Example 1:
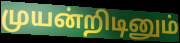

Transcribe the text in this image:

முயன்றிடினும்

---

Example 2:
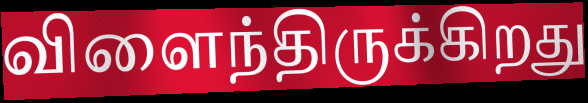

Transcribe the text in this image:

விளைந்திருக்கிறது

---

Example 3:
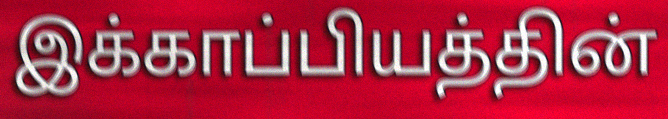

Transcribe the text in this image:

இக்காப்பியத்தின்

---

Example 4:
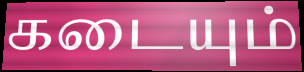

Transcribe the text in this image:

கடையும்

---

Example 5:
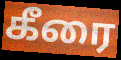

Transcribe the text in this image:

கீரை